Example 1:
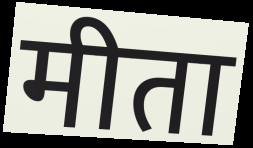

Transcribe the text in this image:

मीता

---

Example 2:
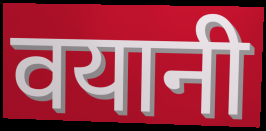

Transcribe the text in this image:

वयानी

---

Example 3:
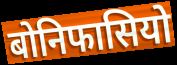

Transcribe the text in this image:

बोनिफासियो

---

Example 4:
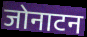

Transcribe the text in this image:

जोनाटन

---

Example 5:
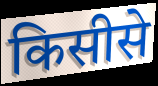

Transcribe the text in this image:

किसीसे